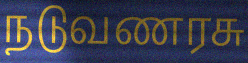
நடுவணரசு